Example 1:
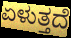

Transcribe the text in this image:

ಏಳುತ್ತದೆ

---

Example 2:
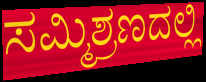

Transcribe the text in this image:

ಸಮ್ಮಿಶ್ರಣದಲ್ಲಿ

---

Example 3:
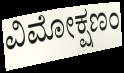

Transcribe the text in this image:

ವಿಮೋಕ್ಷಣಂ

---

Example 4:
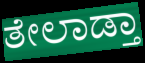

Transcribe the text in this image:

ತೇಲಾಡ್ತಾ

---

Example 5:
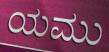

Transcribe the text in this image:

ಯಮು